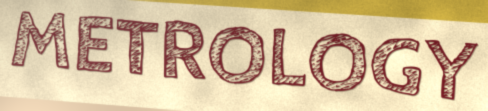
METROLOGY